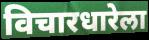
विचारधारेला